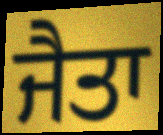
ਜੈਤਾ